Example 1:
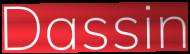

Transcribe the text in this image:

Dassin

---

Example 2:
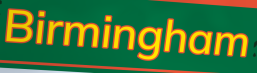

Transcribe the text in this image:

Birmingham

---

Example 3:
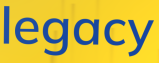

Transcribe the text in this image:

legacy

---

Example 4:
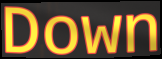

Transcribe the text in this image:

Down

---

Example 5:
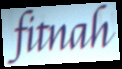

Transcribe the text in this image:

fitnah